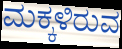
ಮಕ್ಕಳಿರುವ